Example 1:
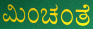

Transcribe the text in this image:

ಮಿಂಚಂತೆ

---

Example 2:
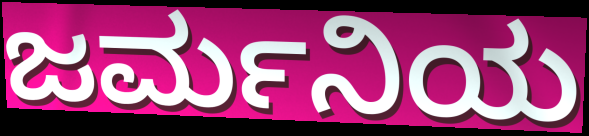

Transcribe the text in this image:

ಜರ್ಮನಿಯ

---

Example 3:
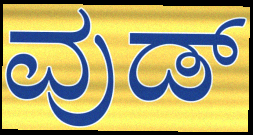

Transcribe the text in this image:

ವುಡ್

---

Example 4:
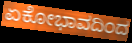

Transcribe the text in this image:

ಏಕೋಭಾವದಿಂದ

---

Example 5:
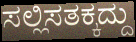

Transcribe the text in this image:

ಸಲ್ಲಿಸತಕ್ಕದ್ದು